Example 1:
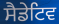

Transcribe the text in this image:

ਸੈਡੇਟਿਵ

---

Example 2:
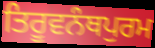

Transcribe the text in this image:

ਤਿਰੂਵਨੰਥਪੁਰਮ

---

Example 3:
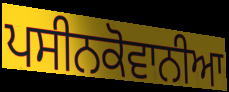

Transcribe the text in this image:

ਪਸੀਨਕੋਵਾਨੀਆ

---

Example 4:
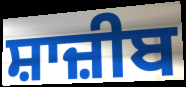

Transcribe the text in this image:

ਸ਼ਾਜ਼ੀਬ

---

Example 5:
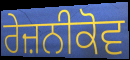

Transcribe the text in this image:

ਰੇਜ਼ਨੀਕੋਵ